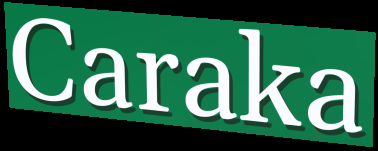
Caraka